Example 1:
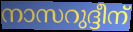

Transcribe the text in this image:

നാസറുദ്ദീന്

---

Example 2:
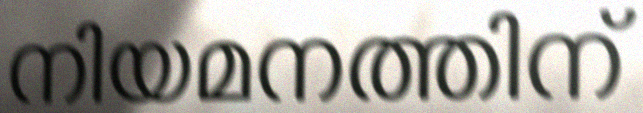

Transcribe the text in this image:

നിയമനത്തിന്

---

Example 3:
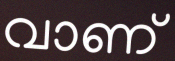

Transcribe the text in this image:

വാണ്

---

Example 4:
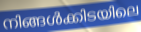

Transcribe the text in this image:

നിങ്ങൾക്കിടയിലെ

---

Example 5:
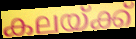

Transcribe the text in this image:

കലയ്ക്ക്